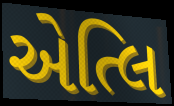
એત્લિ